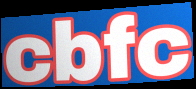
cbfc